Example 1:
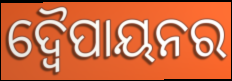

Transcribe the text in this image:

ଦ୍ୱୈପାୟନର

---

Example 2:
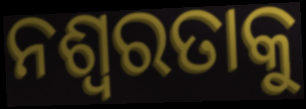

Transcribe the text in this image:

ନଶ୍ବରତାକୁ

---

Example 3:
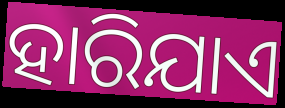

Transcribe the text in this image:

ହାରିଯାଏ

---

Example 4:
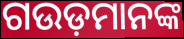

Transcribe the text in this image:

ଗଉଡ଼ମାନଙ୍କ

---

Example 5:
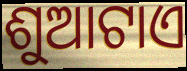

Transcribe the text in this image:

ଶୁଆଟାଏ